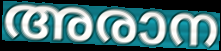
അരാന